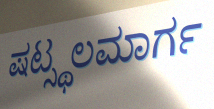
ಷಟ್ಸ್ಥಲಮಾರ್ಗ